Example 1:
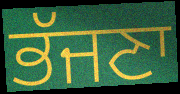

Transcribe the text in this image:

ਭੱਜਣਾ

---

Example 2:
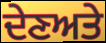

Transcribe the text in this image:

ਦੇਣਅਤੇ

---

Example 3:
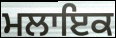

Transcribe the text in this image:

ਮਲਾਇਕ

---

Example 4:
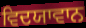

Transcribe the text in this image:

ਵਿਦਯਾਵਾਨ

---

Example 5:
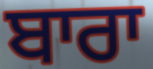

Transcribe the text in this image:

ਬਾਰਾ